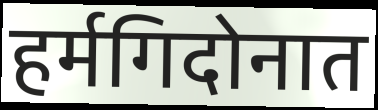
हर्मगिदोनात